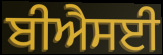
ਬੀਐਸਈ